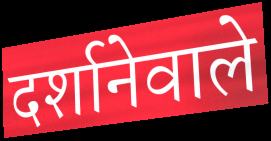
दर्शानेवाले